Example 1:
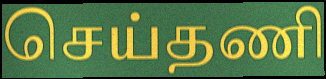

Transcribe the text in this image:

செய்தணி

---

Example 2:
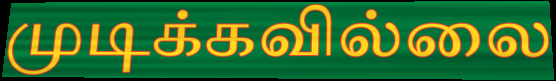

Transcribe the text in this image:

முடிக்கவில்லை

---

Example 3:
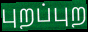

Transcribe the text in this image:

புறப்புற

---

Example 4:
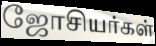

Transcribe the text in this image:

ஜோசியர்கள்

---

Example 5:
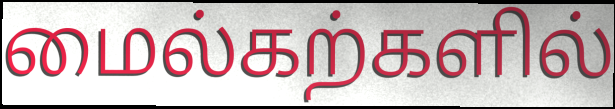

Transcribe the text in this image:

மைல்கற்களில்